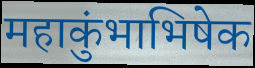
महाकुंभाभिषेक